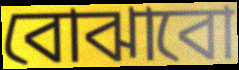
বোঝাবো